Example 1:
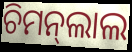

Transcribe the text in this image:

ଚିମନ୍‍ଲାଲ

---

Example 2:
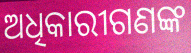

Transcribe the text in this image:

ଅଧିକାରୀଗଣଙ୍କ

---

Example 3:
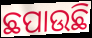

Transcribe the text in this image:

ଛପାଉଛି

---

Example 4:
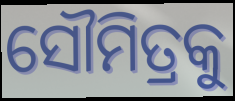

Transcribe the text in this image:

ସୌମିତ୍ରକୁ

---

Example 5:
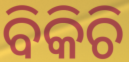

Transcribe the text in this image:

ବିକିଚି